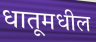
धातूमधील